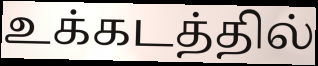
உக்கடத்தில்